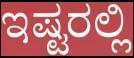
ಇಷ್ಟರಲ್ಲಿ